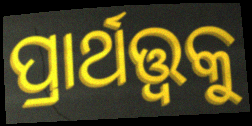
ପ୍ରାର୍ଥତ୍ତ୍ୱକୁ